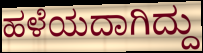
ಹಳೆಯದಾಗಿದ್ದು